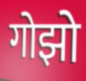
गोझो